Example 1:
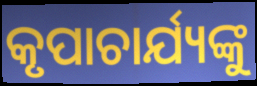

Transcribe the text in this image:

କୃପାଚାର୍ଯ୍ୟଙ୍କୁ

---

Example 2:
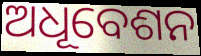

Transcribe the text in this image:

ଅଧୂବେଶନ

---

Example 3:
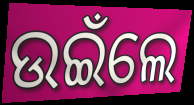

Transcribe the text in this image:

ଉଇଁଲେ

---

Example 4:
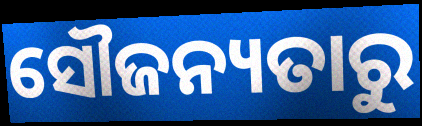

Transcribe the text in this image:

ସୌଜନ୍ୟତାରୁ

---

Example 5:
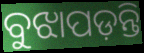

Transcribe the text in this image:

ବୁଝାପଡ଼ନ୍ତି